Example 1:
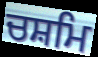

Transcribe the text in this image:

ਚਸ਼ਮਿ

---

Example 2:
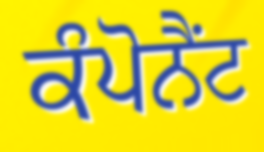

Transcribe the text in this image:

ਕੰਪੋਨੈਂਟ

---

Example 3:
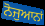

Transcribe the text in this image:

ਨੋਜੁਆਨਾਂ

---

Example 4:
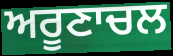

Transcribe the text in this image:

ਅਰੂਣਾਚਲ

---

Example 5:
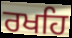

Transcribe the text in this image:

ਰਖਹਿ